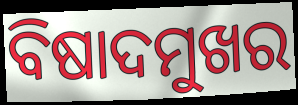
ବିଷାଦମୁଖର